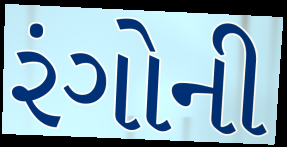
રંગોની